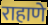
राहाणे